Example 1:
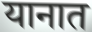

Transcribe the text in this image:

यानात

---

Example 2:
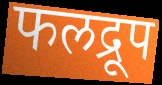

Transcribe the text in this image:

फलद्रूप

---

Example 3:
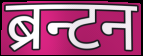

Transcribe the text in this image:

ब्रन्टन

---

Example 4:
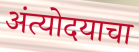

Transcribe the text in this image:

अंत्योदयाचा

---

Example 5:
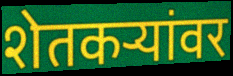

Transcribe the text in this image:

शेतकऱ्यांवर